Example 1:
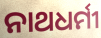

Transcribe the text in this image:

ନାଥଧର୍ମୀ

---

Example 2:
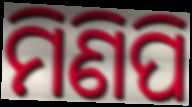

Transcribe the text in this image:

ମିଣିପି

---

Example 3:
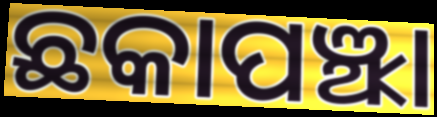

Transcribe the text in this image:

ଛକାପଞ୍ଝା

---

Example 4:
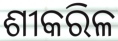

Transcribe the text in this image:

ଶୀକରିଳ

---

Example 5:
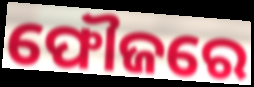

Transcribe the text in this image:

ଫୌଜରେ